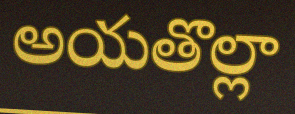
అయతొల్లా